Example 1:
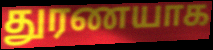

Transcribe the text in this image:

துரணயாக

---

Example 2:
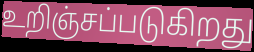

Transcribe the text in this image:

உறிஞ்சப்படுகிறது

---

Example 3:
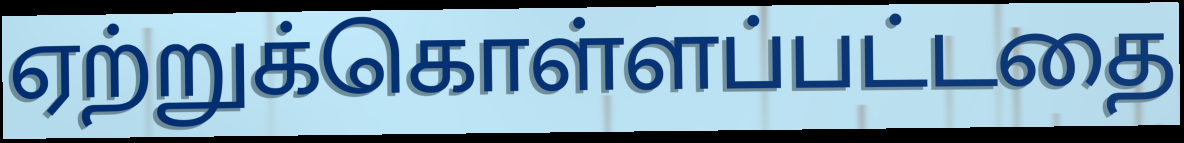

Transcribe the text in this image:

ஏற்றுக்கொள்ளப்பட்டதை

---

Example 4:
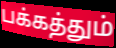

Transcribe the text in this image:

பக்கத்தும்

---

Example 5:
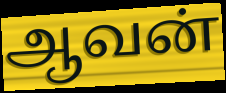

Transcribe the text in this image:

ஆவன்